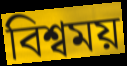
বিশ্বময়